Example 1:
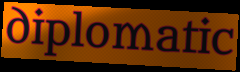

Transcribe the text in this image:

diplomatic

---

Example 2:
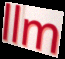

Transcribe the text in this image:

llm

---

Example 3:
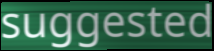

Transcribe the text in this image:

suggested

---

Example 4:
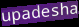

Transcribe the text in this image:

upadesha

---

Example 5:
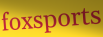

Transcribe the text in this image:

foxsports